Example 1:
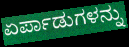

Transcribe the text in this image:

ಏರ್ಪಾಡುಗಳನ್ನು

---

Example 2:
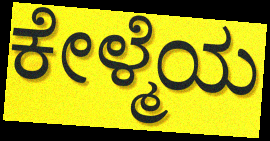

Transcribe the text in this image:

ಕೇಳ್ಮೆಯ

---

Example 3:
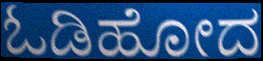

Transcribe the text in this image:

ಓಡಿಹೋದ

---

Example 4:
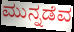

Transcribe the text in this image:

ಮುನ್ನಡೆವ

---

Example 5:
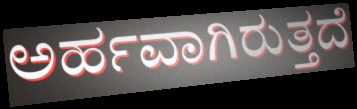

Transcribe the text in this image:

ಅರ್ಹವಾಗಿರುತ್ತದೆ